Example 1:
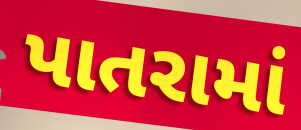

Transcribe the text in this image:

પાતરામાં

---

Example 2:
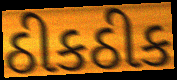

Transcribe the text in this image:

ઠીકઠીક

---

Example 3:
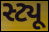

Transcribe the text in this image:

સ્ટ્યૂ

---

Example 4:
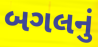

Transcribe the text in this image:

બગલનું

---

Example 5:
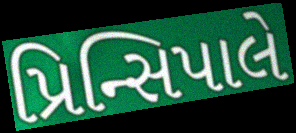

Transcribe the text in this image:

પ્રિન્સિપાલે